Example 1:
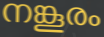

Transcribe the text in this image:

നങ്കൂരം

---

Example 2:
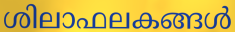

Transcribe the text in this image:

ശിലാഫലകങ്ങൾ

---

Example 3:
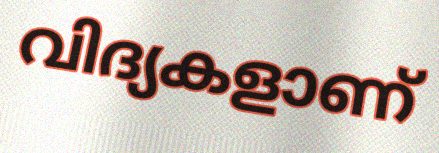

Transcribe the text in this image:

വിദ്യകളാണ്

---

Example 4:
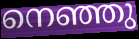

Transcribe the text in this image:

നെഞ്ഞു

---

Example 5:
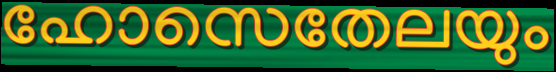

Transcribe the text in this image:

ഹോസെതേലയും